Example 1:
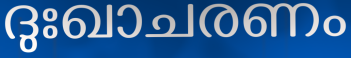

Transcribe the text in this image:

ദുഃഖാചരണം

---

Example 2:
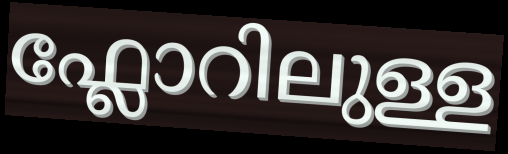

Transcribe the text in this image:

ഫ്ലോറിലുള്ള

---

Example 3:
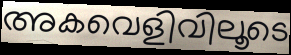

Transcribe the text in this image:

അകവെളിവിലൂടെ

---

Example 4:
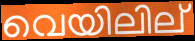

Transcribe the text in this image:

വെയിലില്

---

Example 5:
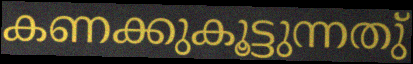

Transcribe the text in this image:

കണക്കുകൂട്ടുന്നതു്